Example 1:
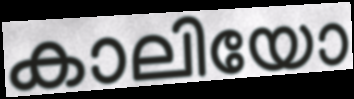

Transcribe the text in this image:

കാലിയോ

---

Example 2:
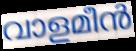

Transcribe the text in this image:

വാളമീൻ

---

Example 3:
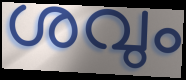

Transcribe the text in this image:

ശവും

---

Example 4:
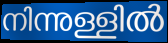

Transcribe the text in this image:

നിന്നുള്ളിൽ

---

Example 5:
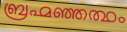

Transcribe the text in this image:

ബ്രഹ്മഞ്ഞത്ഥം